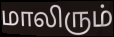
மாலிரும்